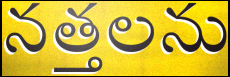
నత్తలను